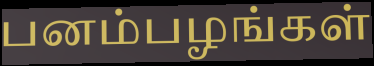
பனம்பழங்கள்